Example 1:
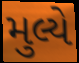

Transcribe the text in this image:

મુલ્યે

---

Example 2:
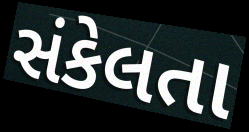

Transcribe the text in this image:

સંકેલતા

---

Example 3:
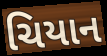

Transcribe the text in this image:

ચિયાન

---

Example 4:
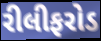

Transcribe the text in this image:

રીલીફરોડ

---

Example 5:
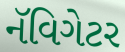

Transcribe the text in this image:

નૅવિગેટર